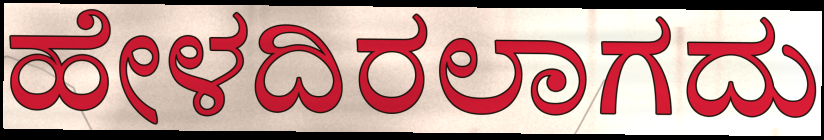
ಹೇಳದಿರಲಾಗದು